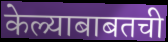
केल्याबाबतची